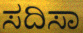
ಸದಿಸಾ